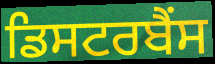
ਡਿਸਟਰਬੈਂਸ